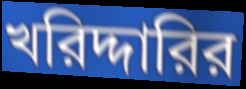
খরিদ্দারির